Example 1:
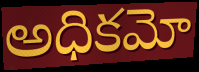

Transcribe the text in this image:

అధికమో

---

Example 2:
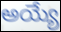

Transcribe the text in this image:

అయ్యే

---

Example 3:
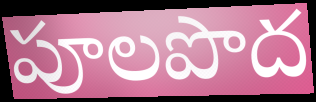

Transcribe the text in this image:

పూలపొద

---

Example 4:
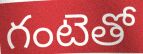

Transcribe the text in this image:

గంటెతో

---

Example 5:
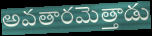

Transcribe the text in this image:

అవతారమెత్తాడు